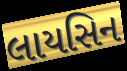
લાયસિન